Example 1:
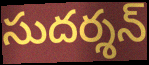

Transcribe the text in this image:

సుదర్శన్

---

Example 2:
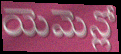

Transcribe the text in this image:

యెమెన్లో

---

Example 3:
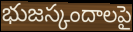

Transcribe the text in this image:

భుజస్కందాలపై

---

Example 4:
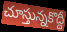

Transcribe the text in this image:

చూస్తున్నకొద్దీ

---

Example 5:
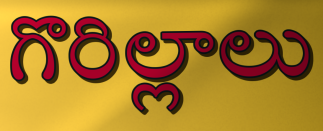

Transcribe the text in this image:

గొరిల్లాలు